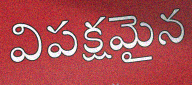
విపక్షమైన